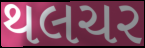
થલચર